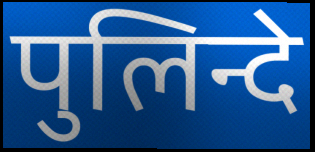
पुलिन्दे